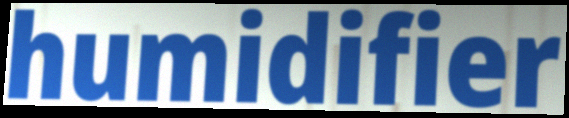
humidifier